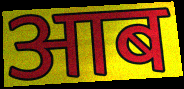
आब